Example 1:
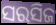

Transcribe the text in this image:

ସରସିଜ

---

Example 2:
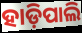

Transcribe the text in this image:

ହାଡ଼ିପାଲି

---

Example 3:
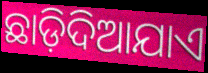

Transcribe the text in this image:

ଛାଡ଼ିଦିଆଯାଏ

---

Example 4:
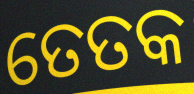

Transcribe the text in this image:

ତେତକ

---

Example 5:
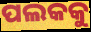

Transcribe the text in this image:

ପଲକକୁ